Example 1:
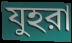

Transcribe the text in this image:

যুহরা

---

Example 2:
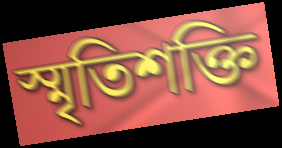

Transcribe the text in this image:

স্মৃতিশক্তি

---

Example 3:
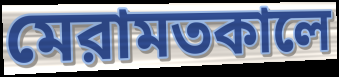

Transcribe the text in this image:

মেরামতকালে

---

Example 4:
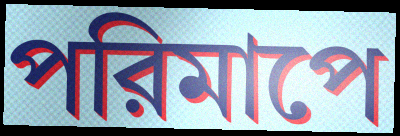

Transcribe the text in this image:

পরিমাপে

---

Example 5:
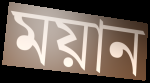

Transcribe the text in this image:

ময়ান